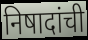
निषादांची